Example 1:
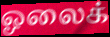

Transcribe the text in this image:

ஓலைக்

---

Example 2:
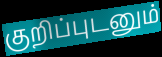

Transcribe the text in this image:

குறிப்புடனும்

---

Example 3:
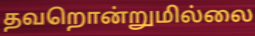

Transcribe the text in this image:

தவறொன்றுமில்லை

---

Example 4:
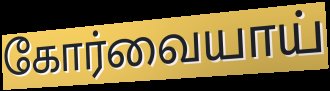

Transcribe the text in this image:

கோர்வையாய்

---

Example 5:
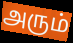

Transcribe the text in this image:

அரும்